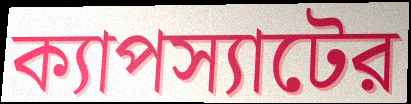
ক্যাপস্যাটের